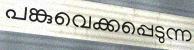
പങ്കുവെക്കപ്പെടുന്ന